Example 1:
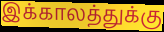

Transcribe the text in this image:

இக்காலத்துக்கு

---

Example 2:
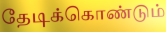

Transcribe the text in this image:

தேடிக்கொண்டும்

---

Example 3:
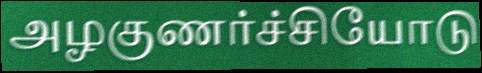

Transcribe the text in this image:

அழகுணர்ச்சியோடு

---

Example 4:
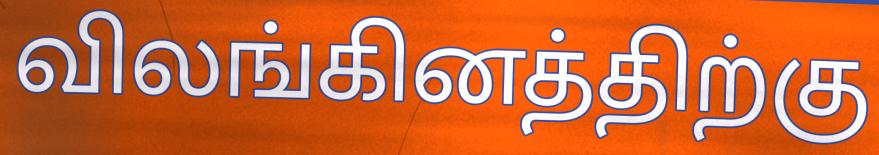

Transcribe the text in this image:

விலங்கினத்திற்கு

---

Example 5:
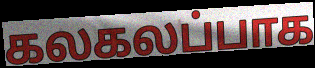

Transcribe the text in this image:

கலகலப்பாக